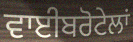
ਵਾਈਬਰੋਟੇਲਾਂ